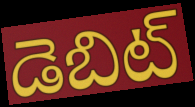
డెబిట్